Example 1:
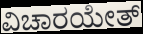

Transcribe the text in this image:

ವಿಚಾರಯೇತ್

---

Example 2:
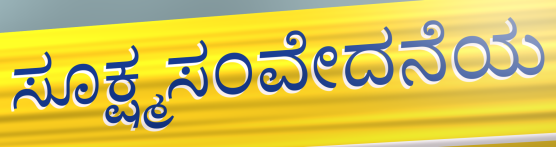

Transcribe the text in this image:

ಸೂಕ್ಷ್ಮಸಂವೇದನೆಯ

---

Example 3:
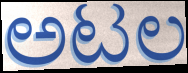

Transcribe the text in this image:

ಅಟಲ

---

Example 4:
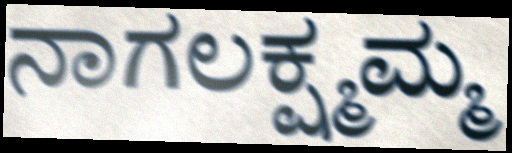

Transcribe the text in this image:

ನಾಗಲಕ್ಷ್ಮಮ್ಮ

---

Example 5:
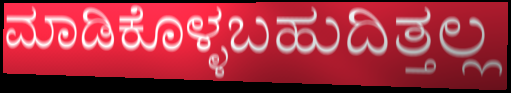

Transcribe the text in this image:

ಮಾಡಿಕೊಳ್ಳಬಹುದಿತ್ತಲ್ಲ